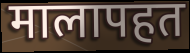
मालापहत